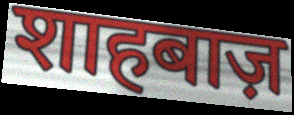
शाहबाज़